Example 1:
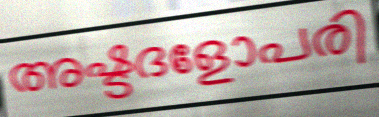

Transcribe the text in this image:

അഷ്ടദളോപരി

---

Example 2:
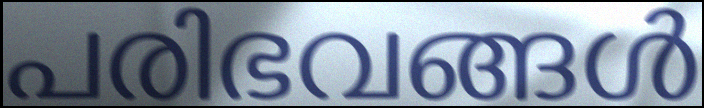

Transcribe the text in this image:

പരിഭവങ്ങൾ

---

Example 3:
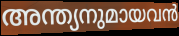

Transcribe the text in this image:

അന്ത്യനുമായവൻ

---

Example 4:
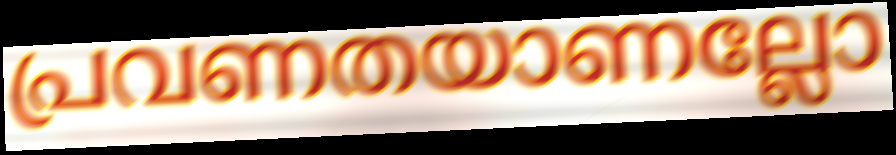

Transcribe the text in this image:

പ്രവണതയാണല്ലോ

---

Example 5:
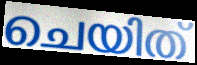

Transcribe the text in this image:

ചെയിത്